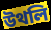
উথলি